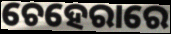
ଚେହେରାରେ